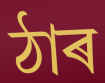
ঠাৰ